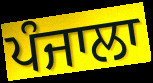
ਪੰਜਾਲਾ